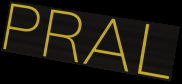
PRAL